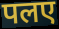
पलए